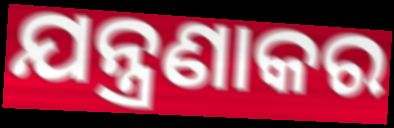
ଯନ୍ତ୍ରଣାକର